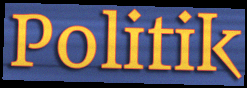
Politik